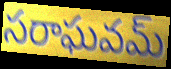
సరాఘవమ్